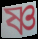
ষ্ণ